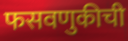
फसवणुकीची